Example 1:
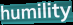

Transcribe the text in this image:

humility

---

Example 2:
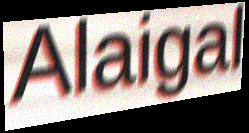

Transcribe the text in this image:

Alaigal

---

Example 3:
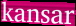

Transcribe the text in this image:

kansar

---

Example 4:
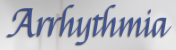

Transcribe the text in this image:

Arrhythmia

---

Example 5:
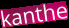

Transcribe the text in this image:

kanthe